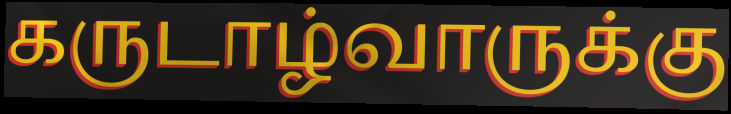
கருடாழ்வாருக்கு